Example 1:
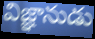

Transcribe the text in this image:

విజ్ఞానుడు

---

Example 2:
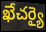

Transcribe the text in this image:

ఖేచర్యై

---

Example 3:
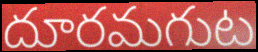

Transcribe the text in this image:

దూరమగుట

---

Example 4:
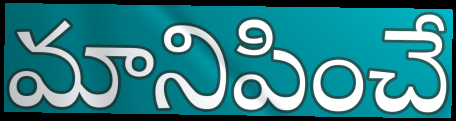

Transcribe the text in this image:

మానిపించే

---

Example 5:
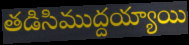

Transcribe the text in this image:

తడిసిముద్దయ్యాయి